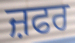
ਜ਼ਫਰ